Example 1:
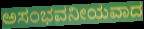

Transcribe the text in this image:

ಅಸಂಭವನೀಯವಾದ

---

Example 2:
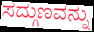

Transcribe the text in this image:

ಸದ್ಗುಣವನ್ನು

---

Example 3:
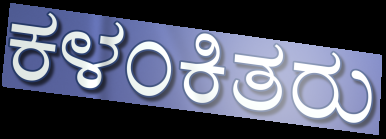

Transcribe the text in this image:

ಕಳಂಕಿತರು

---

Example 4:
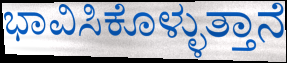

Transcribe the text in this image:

ಭಾವಿಸಿಕೊಳ್ಳುತ್ತಾನೆ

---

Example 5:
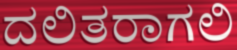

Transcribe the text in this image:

ದಲಿತರಾಗಲಿ